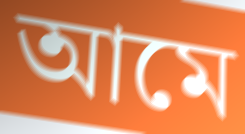
আমে